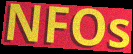
NFOs